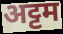
अट्टम